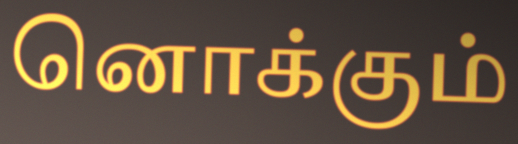
னொக்கும்